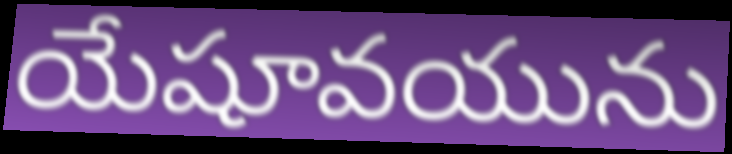
యేషూవయును